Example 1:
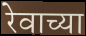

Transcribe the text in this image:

रेवाच्या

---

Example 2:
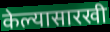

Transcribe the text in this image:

केल्यासारखी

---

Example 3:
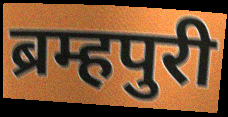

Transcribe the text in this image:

ब्रम्हपुरी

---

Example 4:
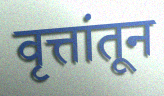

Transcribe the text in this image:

वृत्तांतून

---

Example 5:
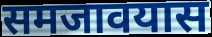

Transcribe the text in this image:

समजावयास